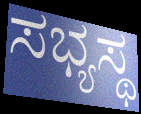
ಸಭ್ಯಸ್ಥ